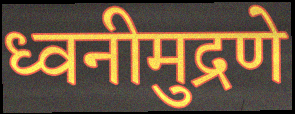
ध्वनीमुद्रणे